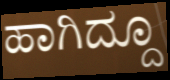
ಹಾಗಿದ್ದೂ